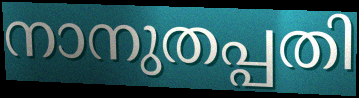
നാനുതപ്പതി